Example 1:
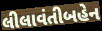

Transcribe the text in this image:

લીલાવંતીબહેન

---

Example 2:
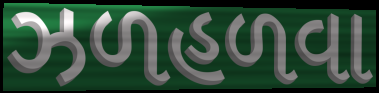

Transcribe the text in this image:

ઝળહળવા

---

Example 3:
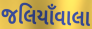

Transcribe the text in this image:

જલિયાઁવાલા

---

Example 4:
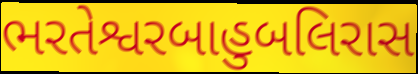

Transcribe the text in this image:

ભરતેશ્વરબાહુબલિરાસ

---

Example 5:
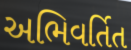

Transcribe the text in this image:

અભિવર્તિત